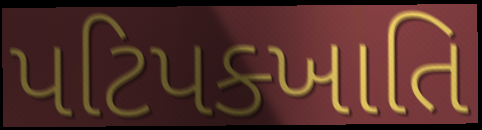
પટિપક્ખાતિ